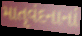
માતૃવંદનાનાં